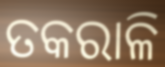
ତକରାଳି